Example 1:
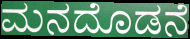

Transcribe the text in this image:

ಮನದೊಡನೆ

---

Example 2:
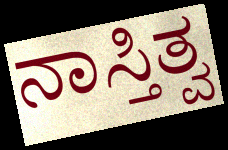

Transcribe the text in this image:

ನಾಸ್ತಿತ್ವ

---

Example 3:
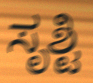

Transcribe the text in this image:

ಸೃಶ್ಟಿ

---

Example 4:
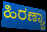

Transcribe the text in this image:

ಹಿರಣ್ಯಾ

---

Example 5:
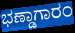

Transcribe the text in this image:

ಭಣ್ಡಾಗಾರಂ